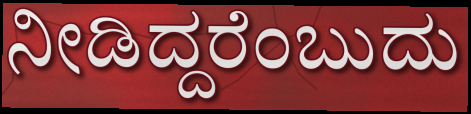
ನೀಡಿದ್ದರೆಂಬುದು